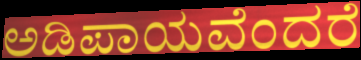
ಅಡಿಪಾಯವೆಂದರೆ